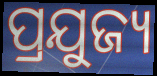
ପ୍ରଯୁଜ୍ୟ